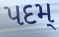
પદમ્